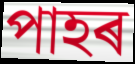
পাহৰ